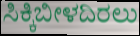
ಸಿಕ್ಕಿಬೀಳದಿರಲು